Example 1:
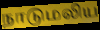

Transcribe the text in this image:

நாடுமலிய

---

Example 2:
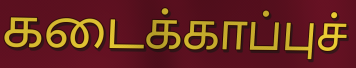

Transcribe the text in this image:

கடைக்காப்புச்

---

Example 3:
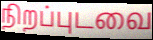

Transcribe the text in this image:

நிறப்புடவை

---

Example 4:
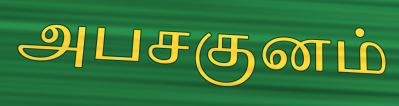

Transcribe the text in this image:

அபசகுனம்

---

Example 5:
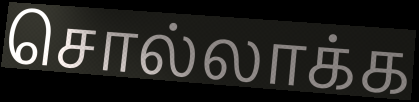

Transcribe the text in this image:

சொல்லாக்க